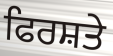
ਫਿਰਸ਼ਤੇ